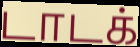
டாடக்